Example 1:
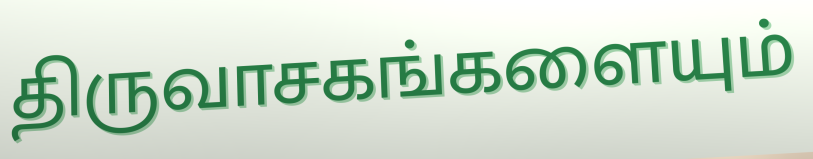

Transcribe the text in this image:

திருவாசகங்களையும்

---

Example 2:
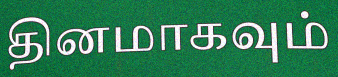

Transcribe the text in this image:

தினமாகவும்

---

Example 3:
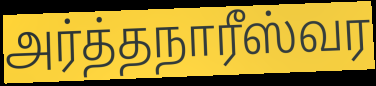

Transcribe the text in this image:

அர்த்தநாரீஸ்வர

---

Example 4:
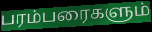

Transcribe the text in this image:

பரம்பரைகளும்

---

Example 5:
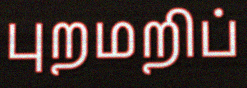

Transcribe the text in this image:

புறமறிப்